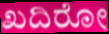
ಖದಿರೋ